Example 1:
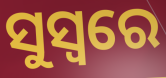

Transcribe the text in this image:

ସୁସ୍ୱରେ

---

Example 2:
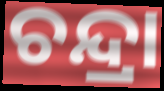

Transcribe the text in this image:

ଚନ୍ଦ୍ରା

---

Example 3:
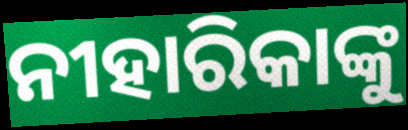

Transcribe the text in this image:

ନୀହାରିକାଙ୍କୁ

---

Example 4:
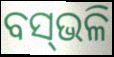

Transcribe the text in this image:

ବସ୍‌ଭଳି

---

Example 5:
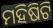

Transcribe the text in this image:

ମହିଷିଟି